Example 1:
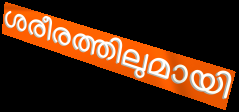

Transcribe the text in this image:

ശരീരത്തിലുമായി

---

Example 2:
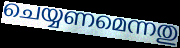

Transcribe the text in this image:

ചെയ്യണമെന്നതു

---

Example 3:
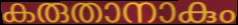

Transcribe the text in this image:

കരുതാനാകും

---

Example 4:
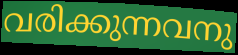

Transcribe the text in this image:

വരിക്കുന്നവനു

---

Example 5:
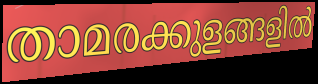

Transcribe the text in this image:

താമരക്കുളങ്ങളിൽ